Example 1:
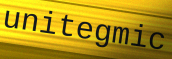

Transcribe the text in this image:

unitegmic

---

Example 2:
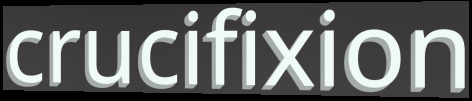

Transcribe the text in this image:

crucifixion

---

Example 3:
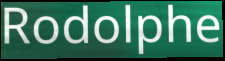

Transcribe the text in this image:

Rodolphe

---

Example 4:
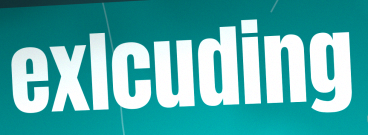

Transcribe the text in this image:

exlcuding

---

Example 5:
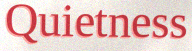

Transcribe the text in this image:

Quietness